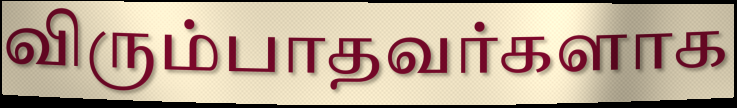
விரும்பாதவர்களாக